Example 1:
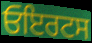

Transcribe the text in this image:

ਓਇਰਟਸ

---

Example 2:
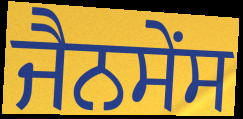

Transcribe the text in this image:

ਜੈਨਸੇਂਸ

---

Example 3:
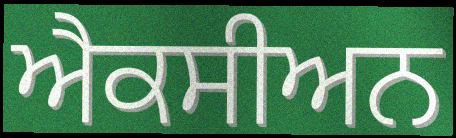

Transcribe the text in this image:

ਐਕਸੀਅਨ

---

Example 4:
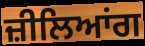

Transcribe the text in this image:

ਜ਼ੀਲਿਆਂਗ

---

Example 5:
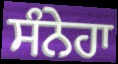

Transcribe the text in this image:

ਸੰਨੇਹਾ